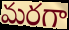
మరగా